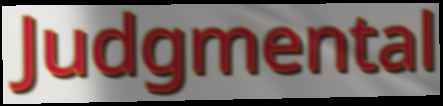
Judgmental